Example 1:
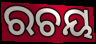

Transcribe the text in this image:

ରଚୟ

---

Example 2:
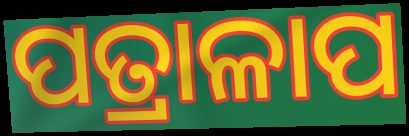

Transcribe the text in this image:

ପତ୍ରାଳାପ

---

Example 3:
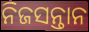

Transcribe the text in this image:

ନିଜସନ୍ତାନ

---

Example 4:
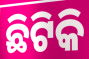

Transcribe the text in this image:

ଛିଟିକି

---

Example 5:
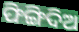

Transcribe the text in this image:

ଫିଙ୍ଗିଦିଅ